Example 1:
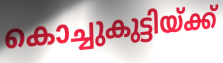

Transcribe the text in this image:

കൊച്ചുകുട്ടിയ്ക്ക്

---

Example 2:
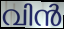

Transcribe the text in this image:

വിൻ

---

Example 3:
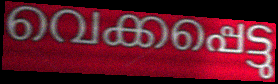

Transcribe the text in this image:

വെക്കപ്പെട്ടു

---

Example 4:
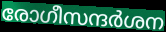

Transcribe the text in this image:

രോഗീസന്ദർശന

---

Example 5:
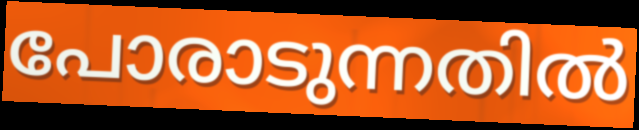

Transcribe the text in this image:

പോരാടുന്നതിൽ